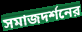
সমাজদর্শনের